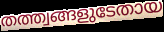
തത്ത്വങ്ങളുടേതായ